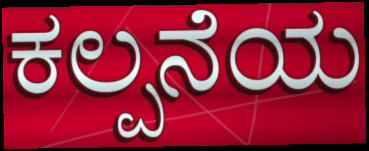
ಕಲ್ಪನೆಯ